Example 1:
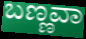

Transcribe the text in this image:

ಬಣ್ಣವಾ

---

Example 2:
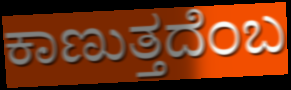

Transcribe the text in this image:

ಕಾಣುತ್ತದೆಂಬ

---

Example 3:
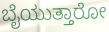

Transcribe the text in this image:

ಬೈಯುತ್ತಾರೋ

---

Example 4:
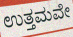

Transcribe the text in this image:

ಉತ್ತಮವೇ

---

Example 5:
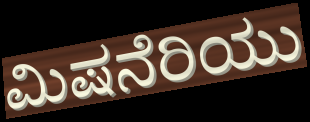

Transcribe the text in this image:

ಮಿಷನೆರಿಯು